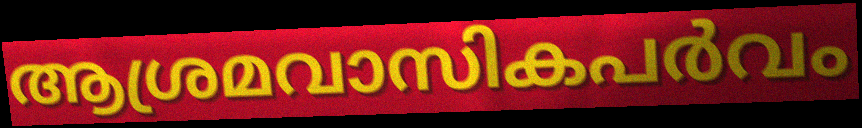
ആശ്രമവാസികപർവം